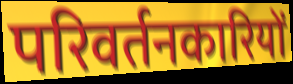
परिवर्तनकारियों